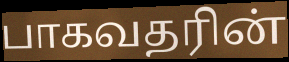
பாகவதரின்